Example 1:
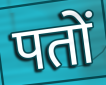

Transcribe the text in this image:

पतों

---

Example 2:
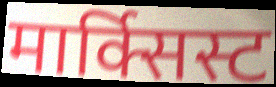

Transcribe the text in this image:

मार्क्सिस्ट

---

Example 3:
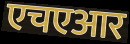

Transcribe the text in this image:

एचएआर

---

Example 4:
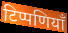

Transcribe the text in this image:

टिप्पणियाँ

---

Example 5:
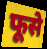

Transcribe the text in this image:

फूसे